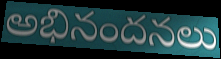
అభినందనలు